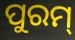
ପୁରମ୍